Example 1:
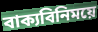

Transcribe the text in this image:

বাক্যবিনিময়ে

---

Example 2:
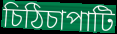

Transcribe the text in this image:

চিঠিচাপাটি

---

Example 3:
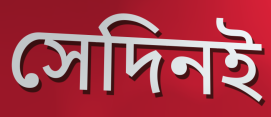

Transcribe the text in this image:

সেদিনই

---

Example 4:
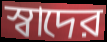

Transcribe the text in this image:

স্বাদের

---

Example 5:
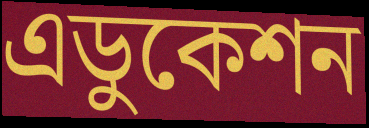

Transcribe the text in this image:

এডুকেশন